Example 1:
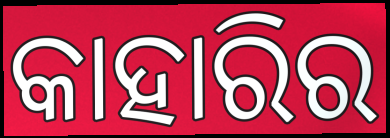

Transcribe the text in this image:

କାହାରିର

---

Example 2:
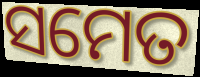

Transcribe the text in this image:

ସମେତ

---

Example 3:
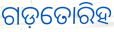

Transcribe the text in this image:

ଗଡ଼ତୋରିହ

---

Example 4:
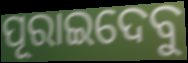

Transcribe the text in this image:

ପୂରାଇଦେବୁ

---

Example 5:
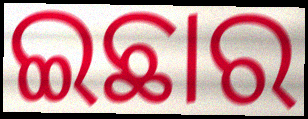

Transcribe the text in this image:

ଇଛାର